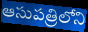
ఆసుపత్రిలోని